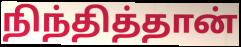
நிந்தித்தான்